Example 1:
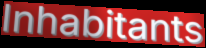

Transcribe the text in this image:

Inhabitants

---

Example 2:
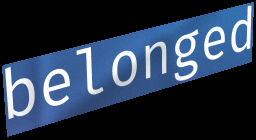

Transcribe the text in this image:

belonged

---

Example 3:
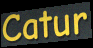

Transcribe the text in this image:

Catur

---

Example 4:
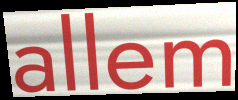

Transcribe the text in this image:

allem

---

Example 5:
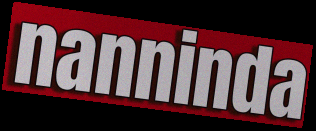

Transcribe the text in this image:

nanninda